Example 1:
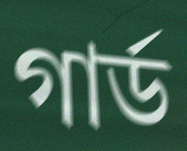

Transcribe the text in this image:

গার্ড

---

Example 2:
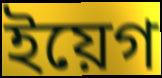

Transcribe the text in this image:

ইয়েগ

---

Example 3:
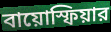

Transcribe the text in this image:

বায়োস্ফিয়ার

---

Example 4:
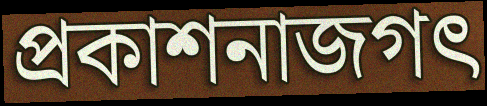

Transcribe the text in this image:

প্রকাশনাজগৎ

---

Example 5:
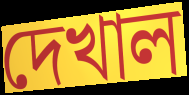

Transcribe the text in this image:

দেখাল